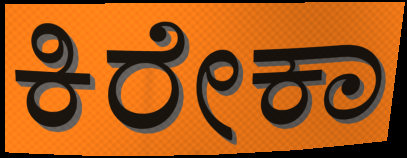
ಕಿರೇಕಾ